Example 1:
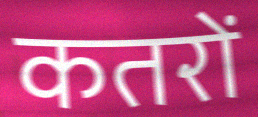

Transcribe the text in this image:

कतरों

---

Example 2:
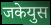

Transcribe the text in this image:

जकेयुस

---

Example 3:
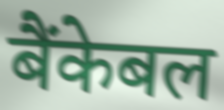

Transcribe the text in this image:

बैंकेबल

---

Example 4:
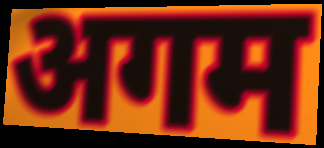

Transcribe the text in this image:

अगम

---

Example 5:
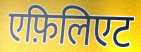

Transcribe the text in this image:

एफ़िलिएट